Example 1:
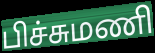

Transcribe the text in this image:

பிச்சுமணி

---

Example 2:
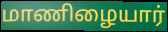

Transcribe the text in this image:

மாணிழையார்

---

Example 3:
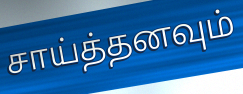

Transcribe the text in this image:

சாய்த்தனவும்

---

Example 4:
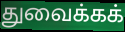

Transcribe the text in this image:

துவைக்கக்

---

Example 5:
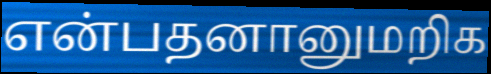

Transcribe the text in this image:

என்பதனானுமறிக